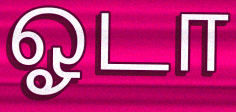
ஓடா